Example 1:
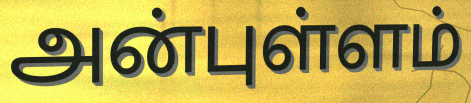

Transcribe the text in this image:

அன்புள்ளம்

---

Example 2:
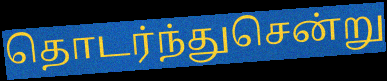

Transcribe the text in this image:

தொடர்ந்துசென்று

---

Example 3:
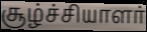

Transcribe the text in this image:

சூழ்ச்சியாளர்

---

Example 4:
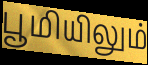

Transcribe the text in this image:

பூமியிலும்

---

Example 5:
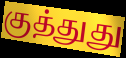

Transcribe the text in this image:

குத்துது